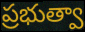
ప్రభుత్వా